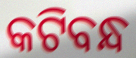
କଟିବନ୍ଧ